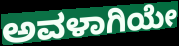
ಅವಳಾಗಿಯೇ